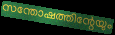
സന്തോഷത്തിന്റേയും